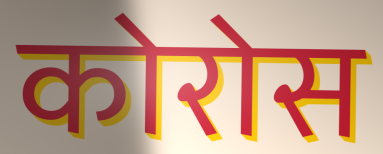
कोरोस